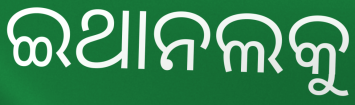
ଇଥାନଲକୁ